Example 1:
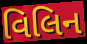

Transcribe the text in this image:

વિલિન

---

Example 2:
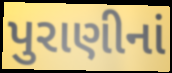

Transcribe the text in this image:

પુરાણીનાં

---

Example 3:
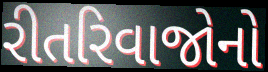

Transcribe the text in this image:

રીતરિવાજોનો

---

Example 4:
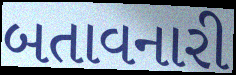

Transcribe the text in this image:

બતાવનારી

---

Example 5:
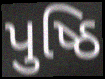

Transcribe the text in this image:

પુષ્ઠિ